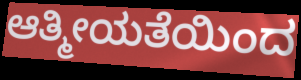
ಆತ್ಮೀಯತೆಯಿಂದ